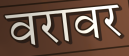
वरावर